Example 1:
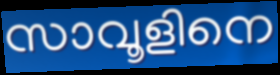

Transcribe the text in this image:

സാവൂളിനെ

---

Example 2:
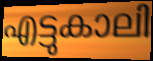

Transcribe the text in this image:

എട്ടുകാലി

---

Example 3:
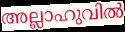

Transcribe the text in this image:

അല്ലാഹുവിൽ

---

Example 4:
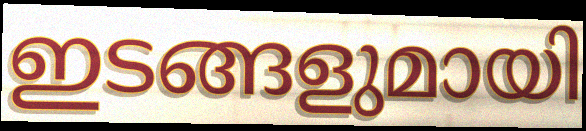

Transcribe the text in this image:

ഇടങ്ങളുമായി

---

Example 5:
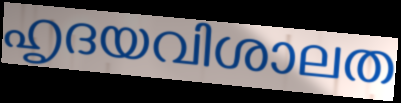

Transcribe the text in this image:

ഹൃദയവിശാലത